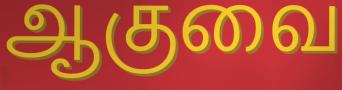
ஆகுவை